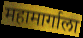
महामार्गाला